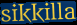
sikkilla